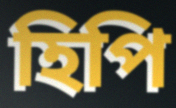
হিপি